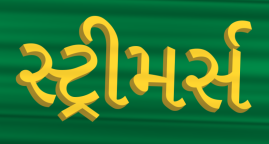
સ્ટ્રીમર્સ